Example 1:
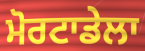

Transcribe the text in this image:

ਮੋਰਟਾਡੇਲਾ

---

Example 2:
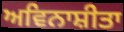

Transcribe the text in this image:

ਅਵਿਨਾਸ਼ੀਤਾ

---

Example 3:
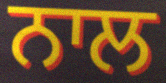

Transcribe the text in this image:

ਨਾਲ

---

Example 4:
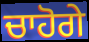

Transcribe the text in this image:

ਚਾਹੋਗੇ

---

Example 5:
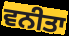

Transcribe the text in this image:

ਵਨੀਤਾ